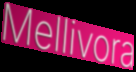
Mellivora